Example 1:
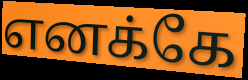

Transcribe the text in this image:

எனக்கே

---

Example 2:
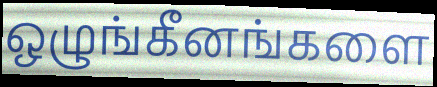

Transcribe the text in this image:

ஒழுங்கீனங்களை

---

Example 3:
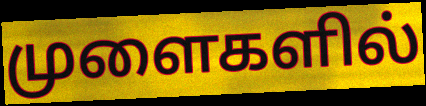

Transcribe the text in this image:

முளைகளில்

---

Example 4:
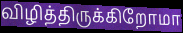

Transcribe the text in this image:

விழித்திருக்கிறோமா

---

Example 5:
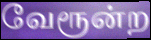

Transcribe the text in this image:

வேரூன்ற